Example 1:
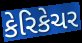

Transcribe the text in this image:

કેરિકેચર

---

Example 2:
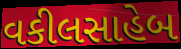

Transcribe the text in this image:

વકીલસાહેબ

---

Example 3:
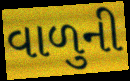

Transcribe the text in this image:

વાળુની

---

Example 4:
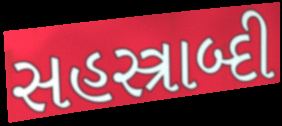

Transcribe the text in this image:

સહસ્ત્રાબ્દી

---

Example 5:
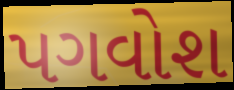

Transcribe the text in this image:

પગવોશ